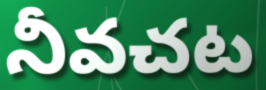
నీవచట